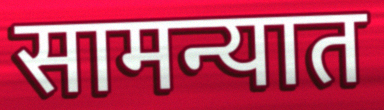
सामन्यात